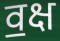
व॒क्ष